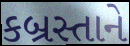
કબ્રસ્તાને